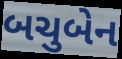
બચુબેન